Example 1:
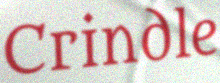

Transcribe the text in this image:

Crindle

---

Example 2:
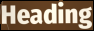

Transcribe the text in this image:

Heading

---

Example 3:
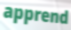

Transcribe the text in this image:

apprend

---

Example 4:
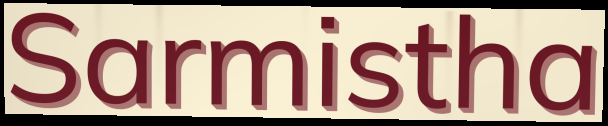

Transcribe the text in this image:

Sarmistha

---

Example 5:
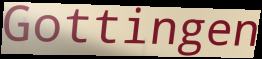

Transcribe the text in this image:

Gottingen